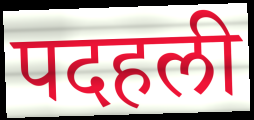
पदहली